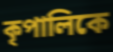
কৃপালিকে